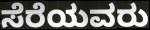
ಸೆರೆಯವರು